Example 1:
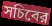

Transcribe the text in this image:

সচিবের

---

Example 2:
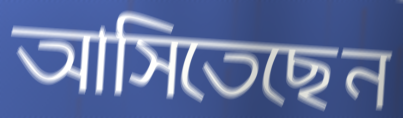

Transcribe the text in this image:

আসিতেছেন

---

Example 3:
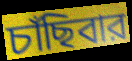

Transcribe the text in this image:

চাঁছিবার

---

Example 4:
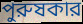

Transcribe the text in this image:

পুরুষকার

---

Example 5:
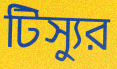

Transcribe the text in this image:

টিস্যুর